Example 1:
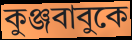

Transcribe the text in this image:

কুঞ্জবাবুকে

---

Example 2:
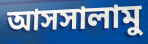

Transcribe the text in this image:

আসসালামু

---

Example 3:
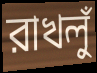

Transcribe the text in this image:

রাখলুঁ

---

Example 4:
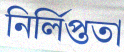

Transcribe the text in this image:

নির্লিপ্ততা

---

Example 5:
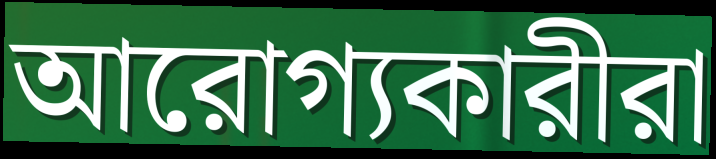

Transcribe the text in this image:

আরোগ্যকারীরা